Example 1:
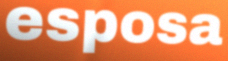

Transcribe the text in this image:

esposa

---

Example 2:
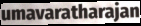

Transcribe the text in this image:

umavaratharajan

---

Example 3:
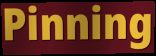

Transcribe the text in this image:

Pinning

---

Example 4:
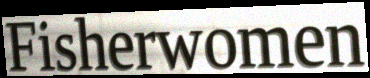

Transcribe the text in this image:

Fisherwomen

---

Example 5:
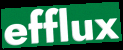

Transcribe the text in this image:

efflux